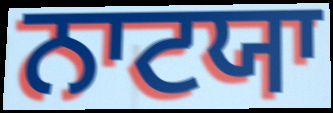
ਨਾਟਯਾ